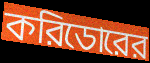
করিডোরের